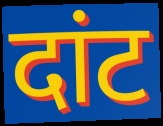
दांट